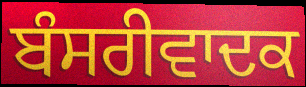
ਬੰਸਰੀਵਾਦਕ